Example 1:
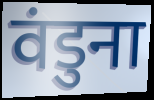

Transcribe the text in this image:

वंडुना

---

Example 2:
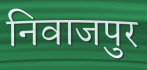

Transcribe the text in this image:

निवाजपुर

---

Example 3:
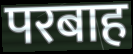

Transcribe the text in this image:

परबाह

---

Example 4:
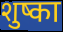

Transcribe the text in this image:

शुष्का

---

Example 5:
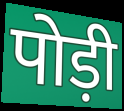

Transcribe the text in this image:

पोड़ी